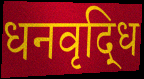
धनवृद्धि